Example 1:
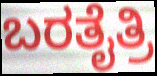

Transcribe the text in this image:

ಬರತೈತ್ರಿ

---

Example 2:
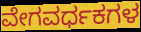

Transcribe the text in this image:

ವೇಗವರ್ಧಕಗಳ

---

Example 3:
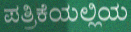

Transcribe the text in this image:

ಪತ್ರಿಕೆಯಲ್ಲಿಯ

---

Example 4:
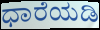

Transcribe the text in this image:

ಧಾರೆಯಡಿ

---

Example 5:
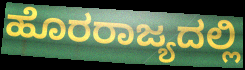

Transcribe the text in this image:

ಹೊರರಾಜ್ಯದಲ್ಲಿ